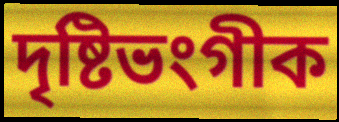
দৃষ্টিভংগীক